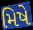
મિષે